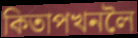
কিতাপখনলৈ